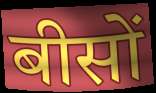
बीसों